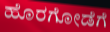
ಹೊರಗೋಡೆಗೆ